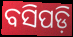
ବସିପଡ଼ି